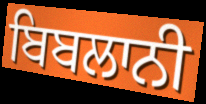
ਬਿਬਲਾਨੀ